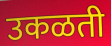
उकळती